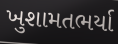
ખુશામતભર્યા